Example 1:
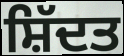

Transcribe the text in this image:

ਸ਼ਿੱਦਤ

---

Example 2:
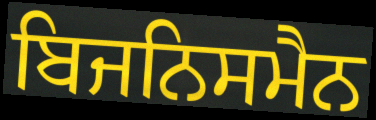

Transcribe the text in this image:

ਬਿਜਨਿਸਮੈਨ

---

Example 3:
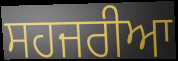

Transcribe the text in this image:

ਸਹਜਰੀਆ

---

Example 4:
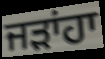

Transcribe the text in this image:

ਜੜਾਂਹਾ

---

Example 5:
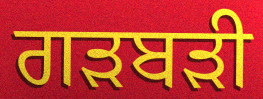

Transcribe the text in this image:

ਗੜਬੜੀ